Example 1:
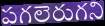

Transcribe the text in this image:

పగలెరుగని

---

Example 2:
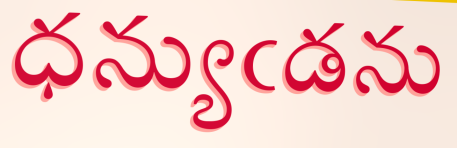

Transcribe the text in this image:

ధన్యుఁడను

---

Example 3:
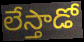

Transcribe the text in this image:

లేస్తాడో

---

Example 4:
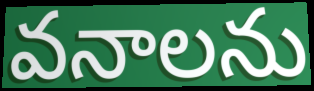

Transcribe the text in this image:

వనాలను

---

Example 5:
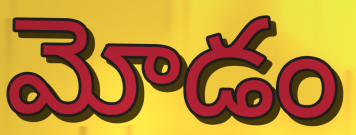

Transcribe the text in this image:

మోడం